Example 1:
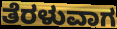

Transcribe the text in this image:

ತೆರಳುವಾಗ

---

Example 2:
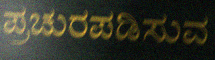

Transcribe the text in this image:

ಪ್ರಚುರಪಡಿಸುವ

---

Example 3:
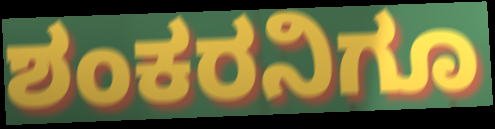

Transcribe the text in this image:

ಶಂಕರನಿಗೂ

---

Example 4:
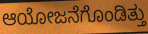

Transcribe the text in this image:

ಆಯೋಜನೆಗೊಂಡಿತ್ತು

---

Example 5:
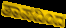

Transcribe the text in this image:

ತಾಪದಿಂದ